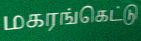
மகரங்கெட்டு